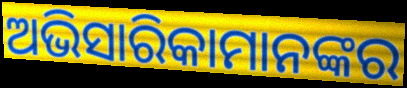
ଅଭିସାରିକାମାନଙ୍କର